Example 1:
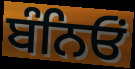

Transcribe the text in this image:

ਬੰਨਿਓਂ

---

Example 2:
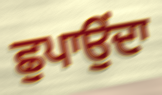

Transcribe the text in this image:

ਛੁਪਾਉਂਦਾ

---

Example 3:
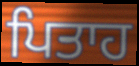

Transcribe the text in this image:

ਪਿਤਾਹ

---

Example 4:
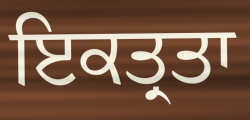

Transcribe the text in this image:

ਇਕਤ੍ਰਤਾ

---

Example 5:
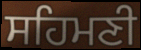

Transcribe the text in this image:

ਸਹਿਮਣੀ